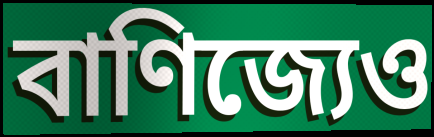
বাণিজ্যেও